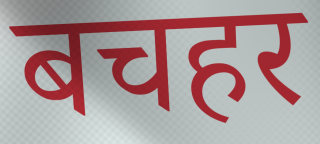
बचहर